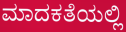
ಮಾದಕತೆಯಲ್ಲಿ